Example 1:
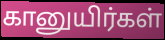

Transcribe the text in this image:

கானுயிர்கள்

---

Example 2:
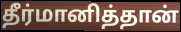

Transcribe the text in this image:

தீர்மானித்தான்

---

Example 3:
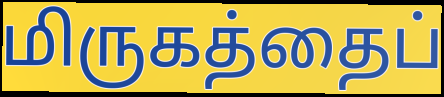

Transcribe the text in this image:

மிருகத்தைப்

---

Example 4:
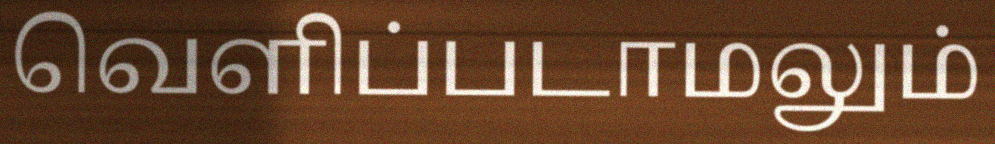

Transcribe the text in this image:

வெளிப்படாமலும்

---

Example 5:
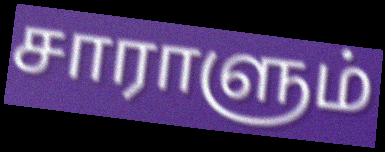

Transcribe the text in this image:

சாராளும்